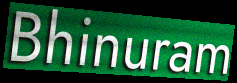
Bhinuram